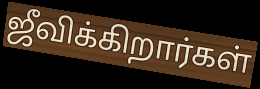
ஜீவிக்கிறார்கள்